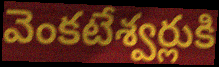
వెంకటేశ్వర్లుకి